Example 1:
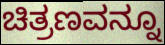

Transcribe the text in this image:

ಚಿತ್ರಣವನ್ನೂ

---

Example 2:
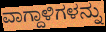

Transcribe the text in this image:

ವಾಗ್ದಾಳಿಗಳನ್ನು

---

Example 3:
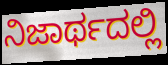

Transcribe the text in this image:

ನಿಜಾರ್ಥದಲ್ಲಿ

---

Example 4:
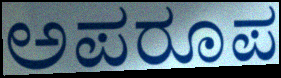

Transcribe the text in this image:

ಅಪರೂಪ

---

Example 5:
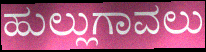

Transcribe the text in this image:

ಹುಲ್ಲುಗಾವಲು